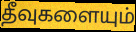
தீவுகளையும்